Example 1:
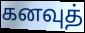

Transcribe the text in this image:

கனவுத்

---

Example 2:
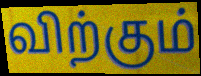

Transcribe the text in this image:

விற்கும்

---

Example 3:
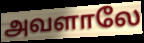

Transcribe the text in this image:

அவளாலே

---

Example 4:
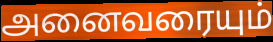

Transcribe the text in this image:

அனைவரையும்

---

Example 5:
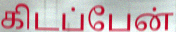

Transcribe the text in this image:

கிடப்பேன்